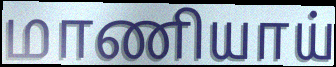
மாணியாய்